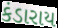
કંડારાય